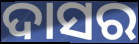
ଦାସର